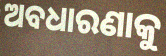
ଅବଧାରଣାକୁ